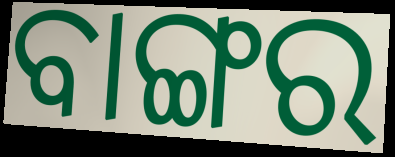
ବାଙ୍ଗର